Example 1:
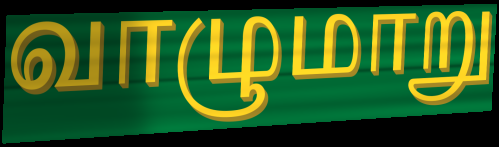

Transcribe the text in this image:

வாழுமாறு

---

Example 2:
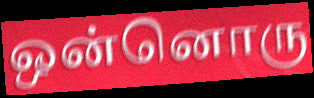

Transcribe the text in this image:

ஒன்னொரு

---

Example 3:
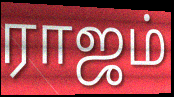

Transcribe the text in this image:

ராஜம்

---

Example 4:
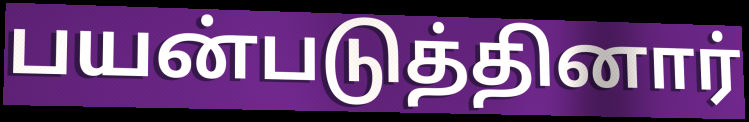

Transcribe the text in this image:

பயன்படுத்தினார்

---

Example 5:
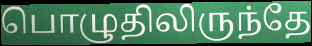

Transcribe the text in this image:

பொழுதிலிருந்தே